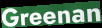
Greenan